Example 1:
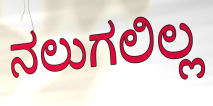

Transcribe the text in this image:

ನಲುಗಲಿಲ್ಲ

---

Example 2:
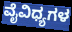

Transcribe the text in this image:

ವೈವಿಧ್ಯಗಳ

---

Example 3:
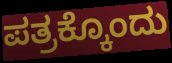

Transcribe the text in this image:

ಪತ್ರಕ್ಕೊಂದು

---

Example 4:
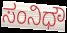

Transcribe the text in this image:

ಸಂನಿಧೌ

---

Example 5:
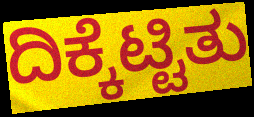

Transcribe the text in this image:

ದಿಕ್ಕೆಟ್ಟಿತು